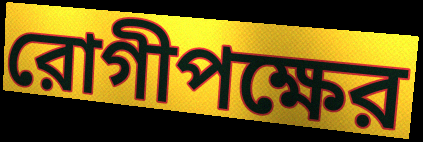
রোগীপক্ষের